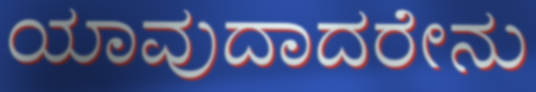
ಯಾವುದಾದರೇನು